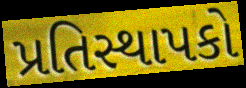
પ્રતિસ્થાપકો